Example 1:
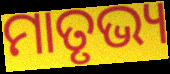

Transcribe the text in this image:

ମାତୃଭ୍ୟ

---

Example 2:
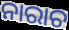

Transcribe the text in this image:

ନାରାଚ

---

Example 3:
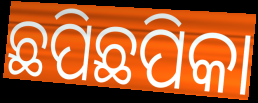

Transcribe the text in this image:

ଛପିଛପିକା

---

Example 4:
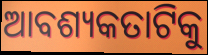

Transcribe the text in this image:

ଆବଶ୍ୟକତାଟିକୁ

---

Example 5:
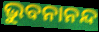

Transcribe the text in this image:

ଭୁବନାନନ୍ଦ